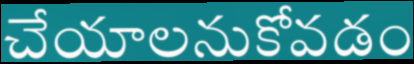
చేయాలనుకోవడం